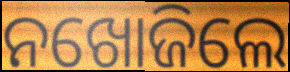
ନଖୋଜିଲେ